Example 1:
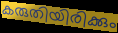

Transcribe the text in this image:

കരുതിയിരിക്കും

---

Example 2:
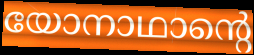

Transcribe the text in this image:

യോനാഥാന്റെ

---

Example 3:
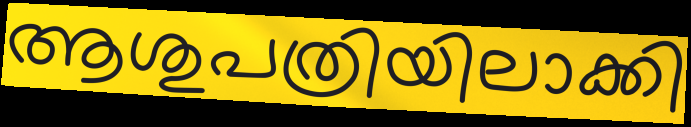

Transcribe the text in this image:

ആശുപത്രിയിലാക്കി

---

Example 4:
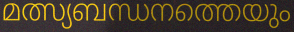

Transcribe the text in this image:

മത്സ്യബന്ധനത്തെയും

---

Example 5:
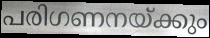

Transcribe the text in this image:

പരിഗണനയ്ക്കും